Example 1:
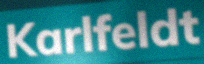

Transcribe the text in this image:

Karlfeldt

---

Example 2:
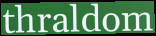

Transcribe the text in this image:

thraldom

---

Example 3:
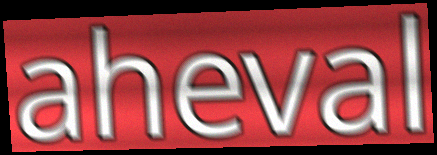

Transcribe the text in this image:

aheval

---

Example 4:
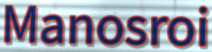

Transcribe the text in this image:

Manosroi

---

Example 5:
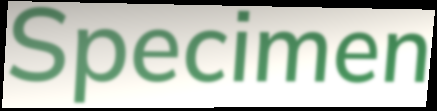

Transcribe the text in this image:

Specimen